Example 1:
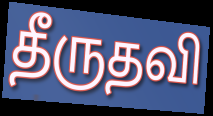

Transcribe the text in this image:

தீருதவி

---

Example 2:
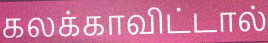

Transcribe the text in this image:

கலக்காவிட்டால்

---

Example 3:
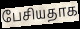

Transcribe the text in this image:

பேசியதாக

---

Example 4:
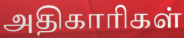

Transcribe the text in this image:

அதிகாரிகள்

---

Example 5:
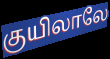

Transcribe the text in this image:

குயிலாலே